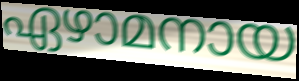
ഏഴാമനായ